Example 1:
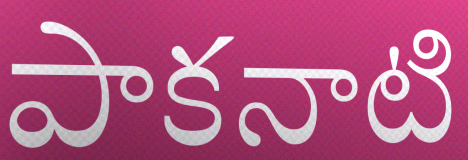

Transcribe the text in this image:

పాకనాటి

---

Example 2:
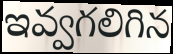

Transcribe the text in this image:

ఇవ్వగలిగిన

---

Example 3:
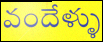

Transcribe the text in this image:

వందేళ్ళు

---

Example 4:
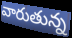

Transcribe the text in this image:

వారుతున్న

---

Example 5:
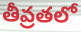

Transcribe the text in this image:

తీవ్రతలో